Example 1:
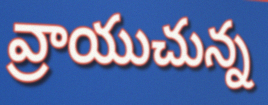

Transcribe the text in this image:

వ్రాయుచున్న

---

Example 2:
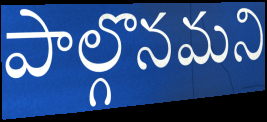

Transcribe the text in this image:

పాల్గొనమని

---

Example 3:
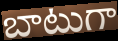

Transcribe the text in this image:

బాటుగా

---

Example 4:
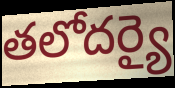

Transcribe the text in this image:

తలోదర్యై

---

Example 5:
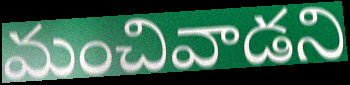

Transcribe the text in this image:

మంచివాడని